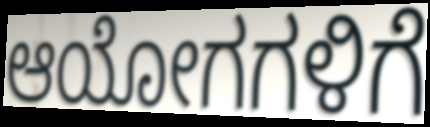
ಆಯೋಗಗಳಿಗೆ